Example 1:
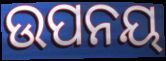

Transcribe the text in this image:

ଉପନୟ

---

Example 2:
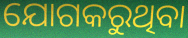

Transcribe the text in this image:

ଯୋଗକରୁଥିବା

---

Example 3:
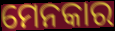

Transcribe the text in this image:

ମେନକାର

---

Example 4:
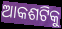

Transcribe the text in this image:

ଆକଶଟିକୁ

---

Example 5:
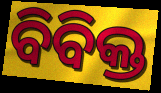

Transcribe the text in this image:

ବିବିକ୍ତ